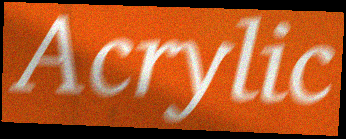
Acrylic